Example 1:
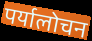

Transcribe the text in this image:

पर्यालोचन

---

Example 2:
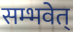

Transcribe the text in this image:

सम्भवेत्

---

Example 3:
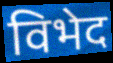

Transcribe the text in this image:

विभेद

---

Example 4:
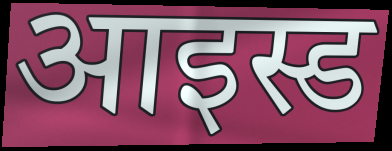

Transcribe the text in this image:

आइस्ड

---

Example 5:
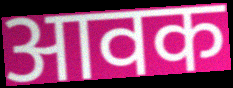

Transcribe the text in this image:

आवक